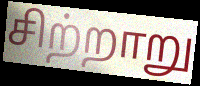
சிற்றாறு